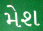
મેશ